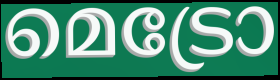
മെട്രോ